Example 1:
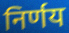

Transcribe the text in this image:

निर्णय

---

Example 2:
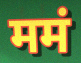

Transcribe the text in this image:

ममं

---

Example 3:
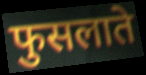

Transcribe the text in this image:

फुसलाते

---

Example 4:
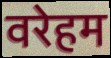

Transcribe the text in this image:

वरेहम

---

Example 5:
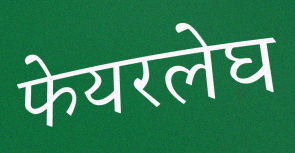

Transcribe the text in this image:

फेयरलेघ